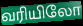
வரியிலோ